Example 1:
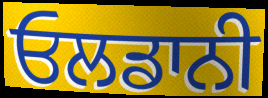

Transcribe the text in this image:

ਓਲਡਾਨੀ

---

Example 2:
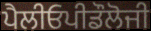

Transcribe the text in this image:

ਪੈਲੀਓਪੀਡੌਲੋਜੀ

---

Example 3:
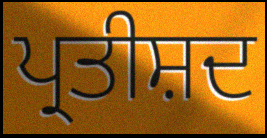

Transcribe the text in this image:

ਪ੍ਰਤੀਸ਼ਦ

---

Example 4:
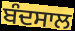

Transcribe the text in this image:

ਬੰਦਸਾਲ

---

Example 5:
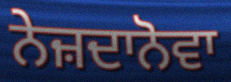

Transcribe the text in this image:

ਨੇਜ਼ਦਾਨੋਵਾ